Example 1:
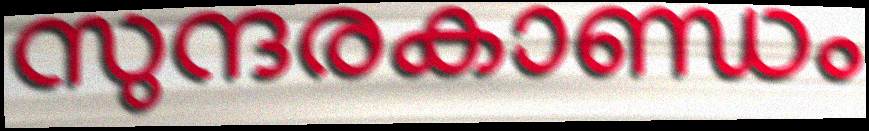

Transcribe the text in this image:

സുന്ദരകാണ്ഡം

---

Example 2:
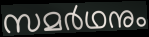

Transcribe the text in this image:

സമർഥനും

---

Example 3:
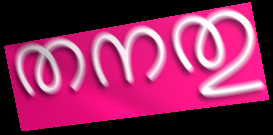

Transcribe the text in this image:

തനതു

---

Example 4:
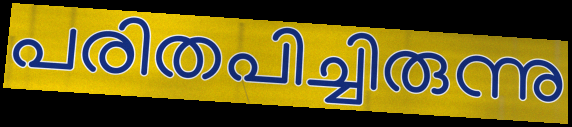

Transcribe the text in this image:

പരിതപിച്ചിരുന്നു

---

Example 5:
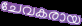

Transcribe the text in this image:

ചേവകരായ